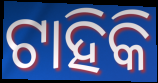
ଟାହିକି